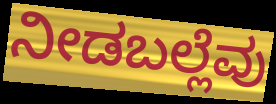
ನೀಡಬಲ್ಲೆವು